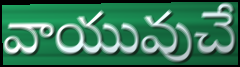
వాయువుచే